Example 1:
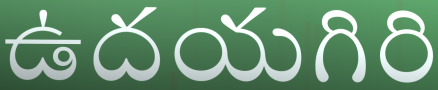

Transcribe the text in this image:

ఉదయగిరి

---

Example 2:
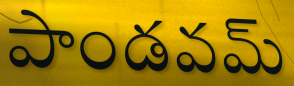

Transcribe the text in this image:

పాండవమ్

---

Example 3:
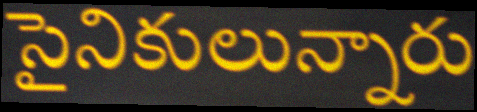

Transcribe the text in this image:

సైనికులున్నారు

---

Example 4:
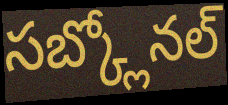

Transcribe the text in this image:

సబ్క్లోనల్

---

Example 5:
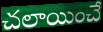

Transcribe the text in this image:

చలాయించే